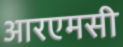
आरएमसी